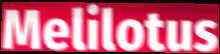
Melilotus